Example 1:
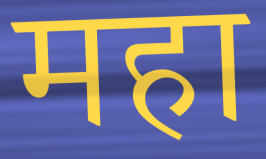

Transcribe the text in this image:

महा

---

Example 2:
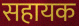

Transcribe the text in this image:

सहायक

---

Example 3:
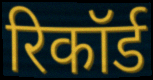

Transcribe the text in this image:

रिकॉर्ड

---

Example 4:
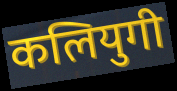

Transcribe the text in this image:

कलियुगी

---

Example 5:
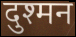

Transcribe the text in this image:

दुश्मन